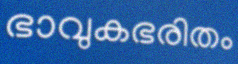
ഭാവുകഭരിതം